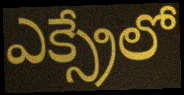
ఎక్స్రేలో